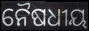
ନୈଷଧୀୟ